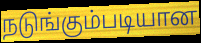
நடுங்கும்படியான